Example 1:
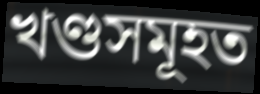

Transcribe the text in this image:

খণ্ডসমূহত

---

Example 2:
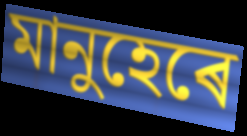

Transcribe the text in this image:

মানুহেৰে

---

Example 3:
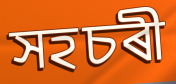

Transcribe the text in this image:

সহচৰী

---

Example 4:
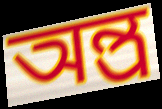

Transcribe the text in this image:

অন্ত্ৰ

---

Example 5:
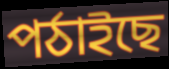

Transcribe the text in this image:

পঠাইছে